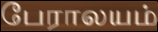
பேராலயம்